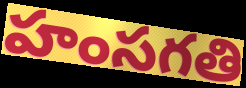
హంసగతి